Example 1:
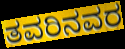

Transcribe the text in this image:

ತವರಿನವರ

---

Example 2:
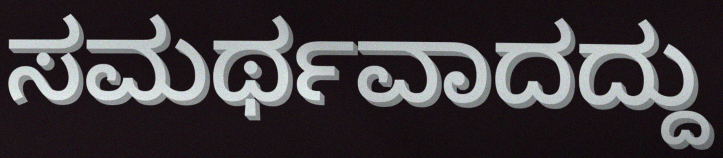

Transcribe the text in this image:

ಸಮರ್ಥವಾದದ್ದು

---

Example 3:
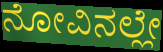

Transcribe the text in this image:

ನೋವಿನಲ್ಲೇ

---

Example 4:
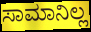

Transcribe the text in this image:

ಸಾಮಾನಿಲ್ಲ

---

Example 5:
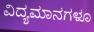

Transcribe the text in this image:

ವಿದ್ಯಮಾನಗಳೂ